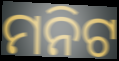
ମନିଟ